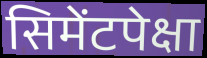
सिमेंटपेक्षा